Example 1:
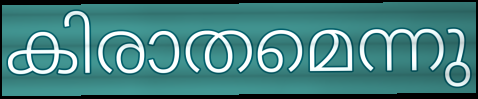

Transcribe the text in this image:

കിരാതമെന്നു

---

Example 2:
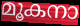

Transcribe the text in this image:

മൂകനാ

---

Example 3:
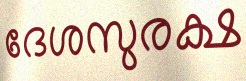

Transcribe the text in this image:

ദേശസുരക്ഷ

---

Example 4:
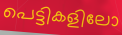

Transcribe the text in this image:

പെട്ടികളിലോ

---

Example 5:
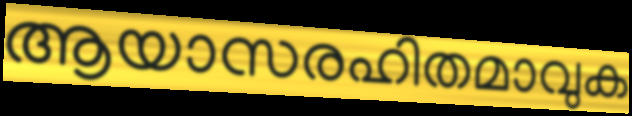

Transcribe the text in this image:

ആയാസരഹിതമാവുക